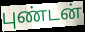
புண்டன்